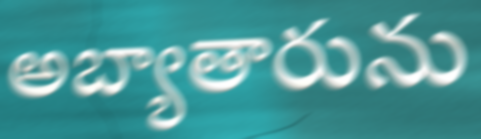
అబ్యాతారును